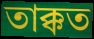
তাক্কত